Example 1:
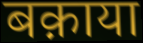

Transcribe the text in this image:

बक़ाया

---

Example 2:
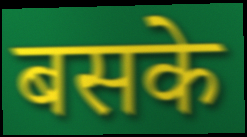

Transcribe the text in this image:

बसके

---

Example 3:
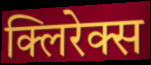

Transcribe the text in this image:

क्लिरेक्स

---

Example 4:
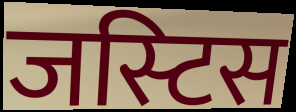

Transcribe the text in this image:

जस्‍टिस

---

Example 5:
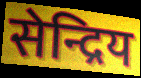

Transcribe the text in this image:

सेन्द्रिय